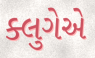
ક્લુગેએ